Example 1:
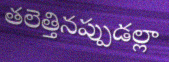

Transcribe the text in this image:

తలెత్తినప్పుడల్లా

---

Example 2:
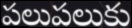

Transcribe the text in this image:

పలుపలుకు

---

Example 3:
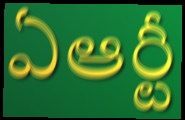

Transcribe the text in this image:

ఏఆర్టీ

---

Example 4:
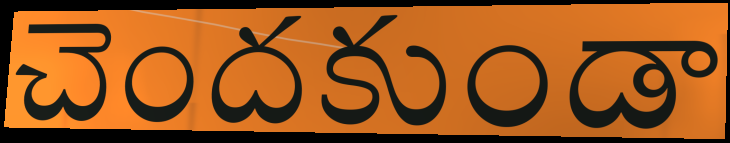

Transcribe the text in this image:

చెందకుండా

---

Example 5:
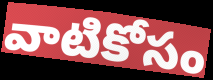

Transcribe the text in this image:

వాటికోసం